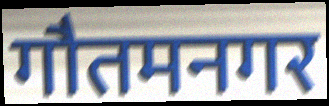
गौतमनगर